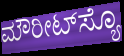
ಮೌರೀಟ್‌ಸ್ಯೊ